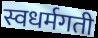
स्वधर्मगती